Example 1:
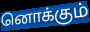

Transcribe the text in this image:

னொக்கும்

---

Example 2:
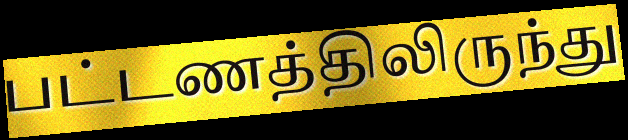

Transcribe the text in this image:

பட்டணத்திலிருந்து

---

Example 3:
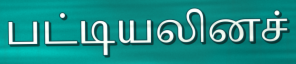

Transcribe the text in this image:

பட்டியலினச்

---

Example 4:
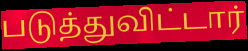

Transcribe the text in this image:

படுத்துவிட்டார்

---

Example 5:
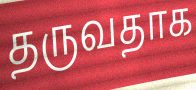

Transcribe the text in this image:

தருவதாக